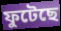
ফুটেছে